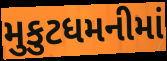
મુકુટધમનીમાં